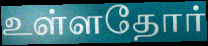
உள்ளதோர்